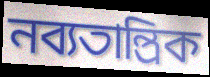
নব্যতান্ত্রিক